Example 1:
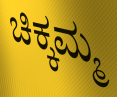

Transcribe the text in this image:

ಚಿಕ್ಕಮ್ಮ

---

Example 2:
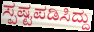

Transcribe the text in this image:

ಸ್ಪಷ್ಟಪಡಿಸಿದ್ದು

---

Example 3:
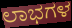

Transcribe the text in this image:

ಲಾಭಗಳ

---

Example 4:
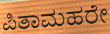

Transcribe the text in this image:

ಪಿತಾಮಹರೇ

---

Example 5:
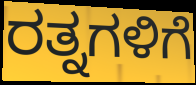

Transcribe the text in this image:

ರತ್ನಗಳಿಗೆ